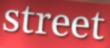
street